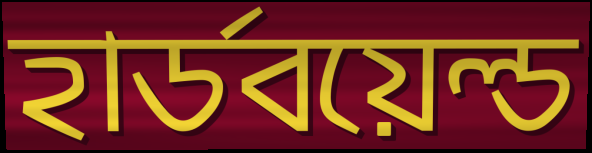
হার্ডবয়েল্ড